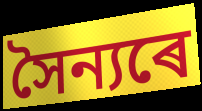
সৈন্যৰে